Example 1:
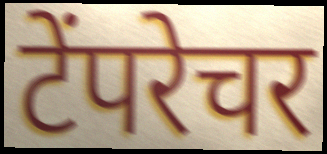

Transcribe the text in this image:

टेंपरेचर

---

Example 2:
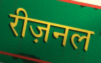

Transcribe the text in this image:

रीज़नल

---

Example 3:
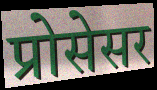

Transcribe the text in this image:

प्रोसेसर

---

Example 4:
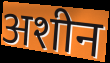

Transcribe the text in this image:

अशीन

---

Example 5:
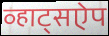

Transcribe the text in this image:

व्‍हाट्सऐप